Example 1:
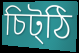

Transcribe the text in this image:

চিট্ঠি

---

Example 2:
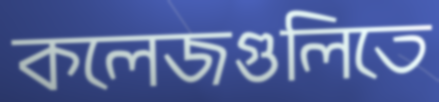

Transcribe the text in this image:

কলেজগুলিতে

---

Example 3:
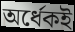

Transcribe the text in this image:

অর্ধেকই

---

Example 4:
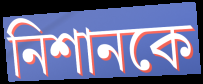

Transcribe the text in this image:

নিশানকে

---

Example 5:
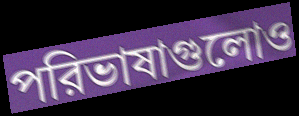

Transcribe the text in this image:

পরিভাষাগুলোও